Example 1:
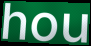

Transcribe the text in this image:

hou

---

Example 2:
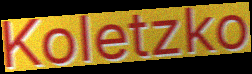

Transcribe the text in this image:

Koletzko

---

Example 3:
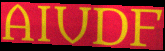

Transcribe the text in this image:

AIUDF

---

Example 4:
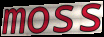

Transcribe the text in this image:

moss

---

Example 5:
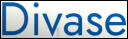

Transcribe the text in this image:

Divase